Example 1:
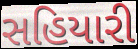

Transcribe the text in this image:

સહિયારી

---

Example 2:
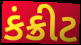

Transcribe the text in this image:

કંક્રીટ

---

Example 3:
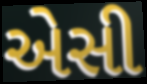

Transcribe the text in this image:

એસી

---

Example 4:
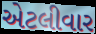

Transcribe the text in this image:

એટલીવાર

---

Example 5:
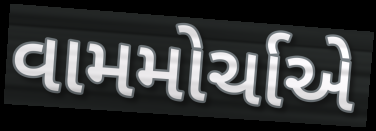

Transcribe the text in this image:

વામમોર્ચાએ